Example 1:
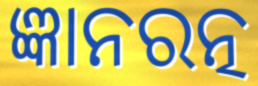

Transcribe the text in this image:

ଜ୍ଞାନରତ୍ନ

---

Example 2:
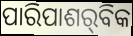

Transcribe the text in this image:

ପାରିପାଶର୍‌ବିକ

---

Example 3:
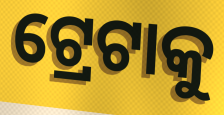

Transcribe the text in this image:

ଟ୍ରେଟାକୁ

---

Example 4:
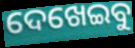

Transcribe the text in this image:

ଦେଖେଇବୁ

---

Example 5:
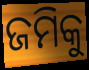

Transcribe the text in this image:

ଜମିକୁ